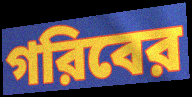
গরিবের